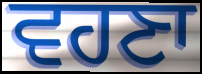
ਵਹਣਾ